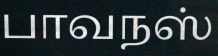
பாவநஸ்